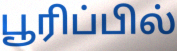
பூரிப்பில்